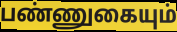
பண்ணுகையும்